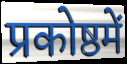
प्रकोष्ठमें